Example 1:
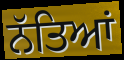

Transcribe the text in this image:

ਨੱਤਿਆਂ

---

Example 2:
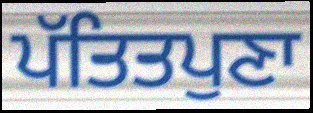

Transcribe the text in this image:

ਪੱਤਿਤਪੁਣਾ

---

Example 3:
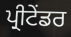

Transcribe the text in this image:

ਪ੍ਰੀਟੇਂਡਰ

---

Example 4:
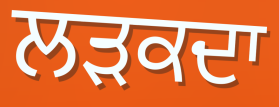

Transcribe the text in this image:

ਲੜਕਦਾ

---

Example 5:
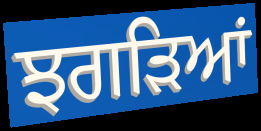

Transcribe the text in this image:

ਝਗੜਿਆਂ